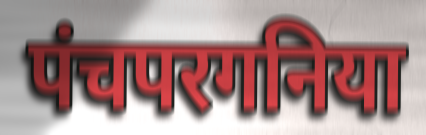
पंचपरगनिया